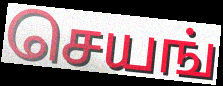
செயங்